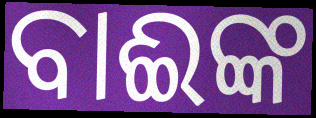
ବାଈଙ୍କ